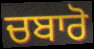
ਚਬਾਰੋ